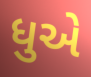
ધુએ